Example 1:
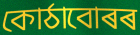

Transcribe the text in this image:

কোঠাবোৰৰ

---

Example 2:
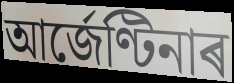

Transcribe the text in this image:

আৰ্জেণ্টিনাৰ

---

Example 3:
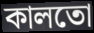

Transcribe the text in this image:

কালতো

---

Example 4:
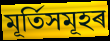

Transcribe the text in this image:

মূৰ্তিসমূহৰ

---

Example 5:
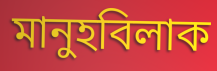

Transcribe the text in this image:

মানুহবিলাক